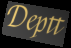
Deptt